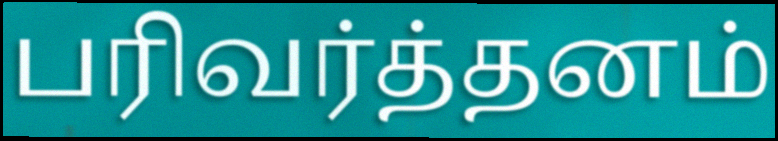
பரிவர்த்தனம்